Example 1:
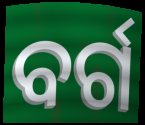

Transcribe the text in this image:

ବର୍ଗ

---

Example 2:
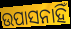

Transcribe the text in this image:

ଉପାସନାହିଁ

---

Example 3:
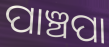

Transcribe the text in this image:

ପାଞ୍ଚପା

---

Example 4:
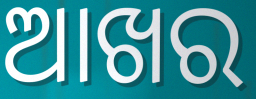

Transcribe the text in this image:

ଆଖର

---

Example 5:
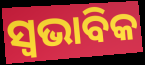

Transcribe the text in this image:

ସ୍ୱଭାବିକ